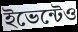
ইভেন্টেও